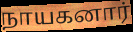
நாயகனார்